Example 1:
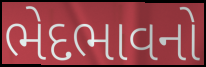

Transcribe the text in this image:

ભેદભાવનો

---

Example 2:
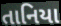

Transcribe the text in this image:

તાનિયા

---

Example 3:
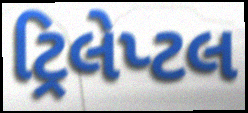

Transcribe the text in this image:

ટ્રિલેપ્ટલ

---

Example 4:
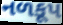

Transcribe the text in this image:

નળકૂપ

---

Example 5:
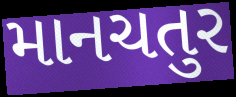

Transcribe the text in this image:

માનચતુર